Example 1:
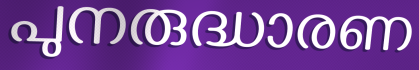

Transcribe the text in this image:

പുനരുദ്ധാരണ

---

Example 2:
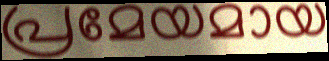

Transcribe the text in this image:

പ്രമേയമായ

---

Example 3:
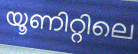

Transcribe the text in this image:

യൂണിറ്റിലെ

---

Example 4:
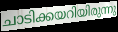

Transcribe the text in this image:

ചാടിക്കയറിയിരുന്നു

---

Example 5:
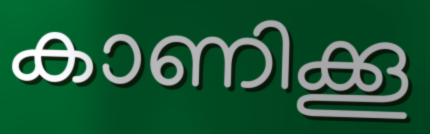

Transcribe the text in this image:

കാണിക്കൂ